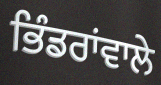
ਭਿੰਡਰਾਂਵਾਲੇ